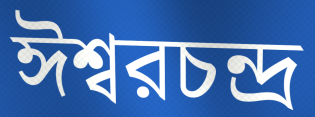
ঈশ্বরচন্দ্র